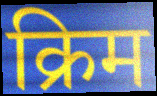
क्रिम